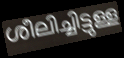
ശീലിച്ചിട്ടുള്ള